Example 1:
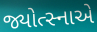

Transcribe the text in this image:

જ્યોત્સ્નાએ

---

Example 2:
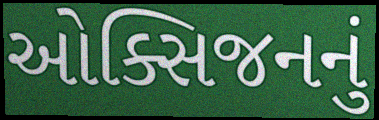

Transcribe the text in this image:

ઓક્સિજનનું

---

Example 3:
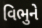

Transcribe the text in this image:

વિભુને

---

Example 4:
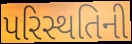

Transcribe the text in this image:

પરિસ્થતિની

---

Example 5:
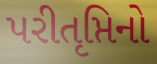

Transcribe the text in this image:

પરીતૃપ્તિનો